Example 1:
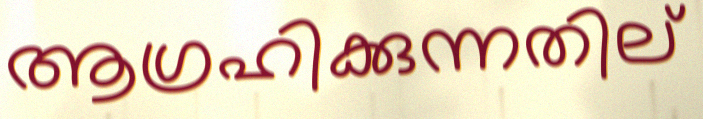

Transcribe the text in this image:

ആഗ്രഹിക്കുന്നതില്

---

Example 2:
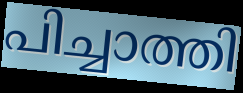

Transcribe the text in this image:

പിച്ചാത്തി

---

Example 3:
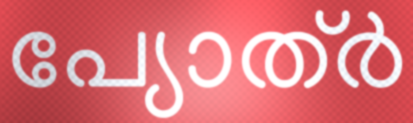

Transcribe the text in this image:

പ്യോത്ർ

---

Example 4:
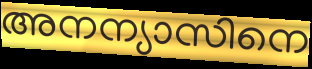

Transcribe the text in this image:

അനന്യാസിനെ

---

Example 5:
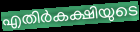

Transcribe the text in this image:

എതിർകക്ഷിയുടെ